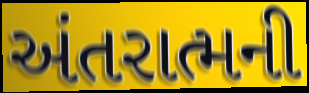
અંતરાત્મની